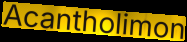
Acantholimon